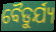
ବୈଡୁର୍ଯ୍ୟ